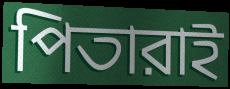
পিতারাই